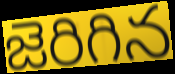
జెరిగిన